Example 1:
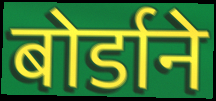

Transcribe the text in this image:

बोर्डाने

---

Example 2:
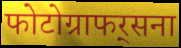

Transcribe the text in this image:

फोटोग्राफर्सना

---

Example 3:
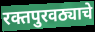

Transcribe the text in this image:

रक्तपुरवठ्याचे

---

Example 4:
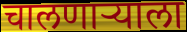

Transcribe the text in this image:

चालणाऱ्याला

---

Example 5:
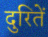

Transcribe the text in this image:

दुरितें